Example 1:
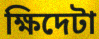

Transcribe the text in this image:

ক্ষিদেটা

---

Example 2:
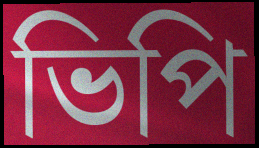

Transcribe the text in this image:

ভিপি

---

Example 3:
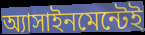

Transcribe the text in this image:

অ্যাসাইনমেন্টেই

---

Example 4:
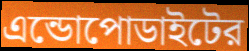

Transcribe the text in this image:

এন্ডোপোডাইটের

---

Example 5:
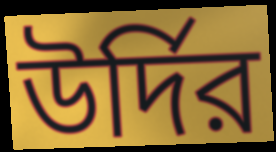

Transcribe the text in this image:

উর্দির